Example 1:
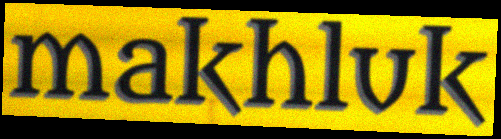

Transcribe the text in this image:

makhluk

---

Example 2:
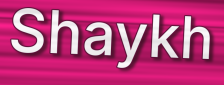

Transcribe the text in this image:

Shaykh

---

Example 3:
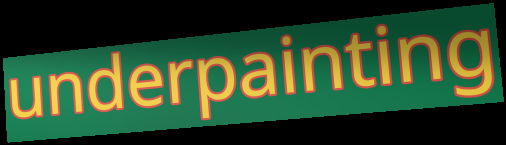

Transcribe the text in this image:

underpainting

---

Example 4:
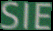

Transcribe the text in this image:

SIE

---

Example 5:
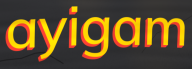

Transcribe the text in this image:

ayigam